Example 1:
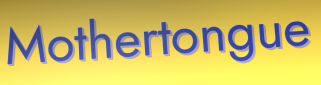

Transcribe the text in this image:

Mothertongue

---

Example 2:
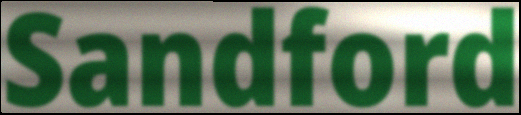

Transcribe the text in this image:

Sandford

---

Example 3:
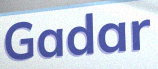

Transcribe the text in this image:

Gadar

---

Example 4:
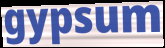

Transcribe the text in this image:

gypsum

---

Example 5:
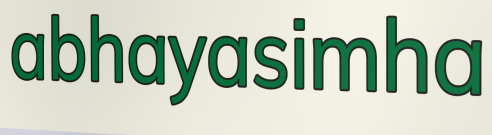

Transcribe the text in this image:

abhayasimha